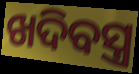
ଖଦିବସ୍ତ୍ର